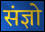
संज्ञो